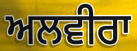
ਅਲਵੀਰਾ